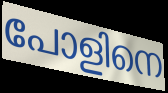
പോളിനെ